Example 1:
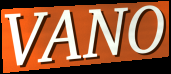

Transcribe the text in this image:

VANO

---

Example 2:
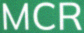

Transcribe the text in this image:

MCR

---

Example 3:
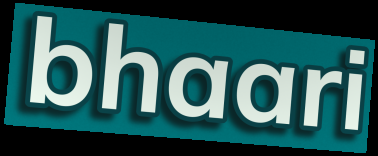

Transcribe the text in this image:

bhaari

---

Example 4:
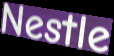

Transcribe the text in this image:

Nestle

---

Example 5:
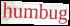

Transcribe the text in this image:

humbug